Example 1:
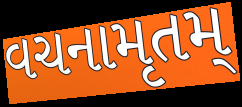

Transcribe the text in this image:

વચનામૃતમ્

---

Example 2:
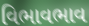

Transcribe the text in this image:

વિભાવભાવ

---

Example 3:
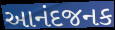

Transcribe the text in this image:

આનંદજનક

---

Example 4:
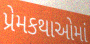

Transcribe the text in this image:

પ્રેમકથાઓમાં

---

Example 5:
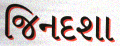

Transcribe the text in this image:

જિનદશા